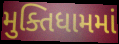
મુક્તિધામમાં